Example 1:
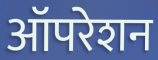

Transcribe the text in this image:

ऑपरेशन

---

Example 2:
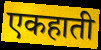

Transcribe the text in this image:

एकहाती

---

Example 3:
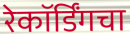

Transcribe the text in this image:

रेकॉर्डिंगचा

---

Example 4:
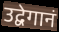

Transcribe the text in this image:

उद्वेगानं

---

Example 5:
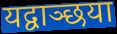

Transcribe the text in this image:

यद्वाञ्छया